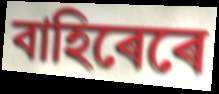
বাহিৰেৰে